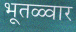
भूतळ्वार